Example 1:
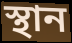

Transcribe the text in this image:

স্থান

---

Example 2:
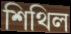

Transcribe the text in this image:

শিথিল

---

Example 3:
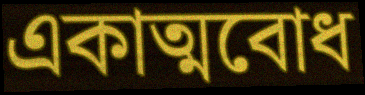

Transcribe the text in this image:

একাত্মবোধ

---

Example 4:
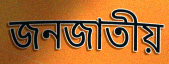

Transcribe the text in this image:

জনজাতীয়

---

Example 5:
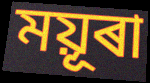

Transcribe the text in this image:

ময়ূৰা